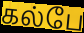
கல்பே